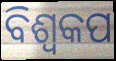
ବିଶ୍ବକପ